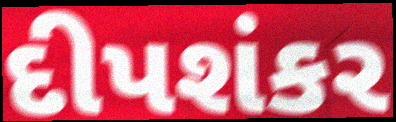
દીપશંકર